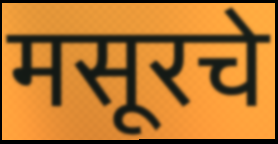
मसूरचे